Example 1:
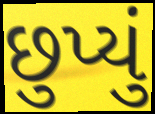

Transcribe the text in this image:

છુપ્યું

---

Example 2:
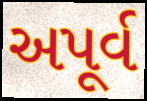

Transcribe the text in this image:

અપૂર્વ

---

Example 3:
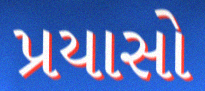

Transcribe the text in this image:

પ્રયાસો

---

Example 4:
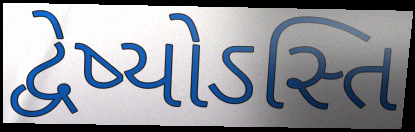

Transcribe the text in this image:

દ્વેષ્યોઽસ્તિ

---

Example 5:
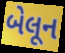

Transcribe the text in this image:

બેલૂન